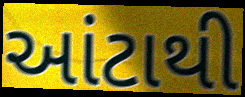
આંટાથી